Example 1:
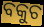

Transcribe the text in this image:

ବକୁଚ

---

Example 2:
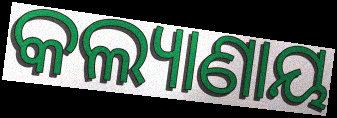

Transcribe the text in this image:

କଲ୍ୟାଣାୟ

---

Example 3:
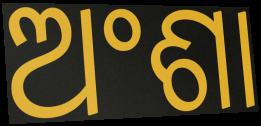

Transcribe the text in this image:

ଅଂଶା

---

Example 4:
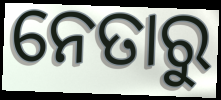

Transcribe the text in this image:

ନେତାରୁ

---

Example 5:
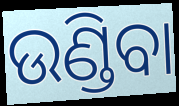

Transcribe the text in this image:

ଉଣ୍ଡିବା